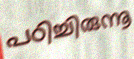
പഠിച്ചിരുന്നൂ